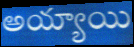
అయ్యాయి